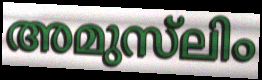
അമുസ്‌ലിം